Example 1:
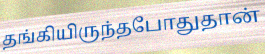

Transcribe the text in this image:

தங்கியிருந்தபோதுதான்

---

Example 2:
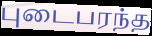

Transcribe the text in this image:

புடைபரந்த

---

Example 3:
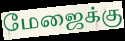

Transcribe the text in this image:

மேஜைக்கு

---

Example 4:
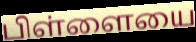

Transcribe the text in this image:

பிள்ளையை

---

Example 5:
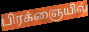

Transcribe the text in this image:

பிரக்ஞையில்